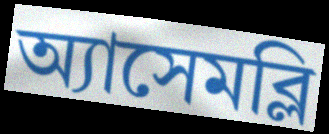
অ্যাসেমব্লি